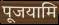
पूजयामि